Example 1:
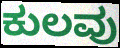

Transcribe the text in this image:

ಕುಲವು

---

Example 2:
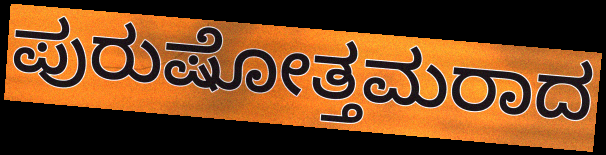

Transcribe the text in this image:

ಪುರುಷೋತ್ತಮರಾದ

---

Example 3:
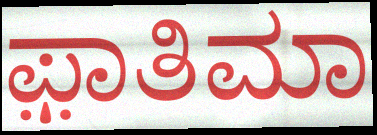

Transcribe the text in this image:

ಫ಼ಾತಿಮಾ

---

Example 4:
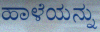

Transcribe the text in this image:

ಹಾಳೆಯನ್ನು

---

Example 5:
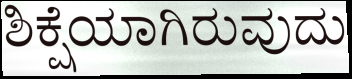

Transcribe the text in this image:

ಶಿಕ್ಷೆಯಾಗಿರುವುದು